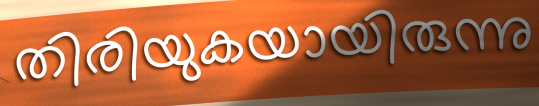
തിരിയുകയായിരുന്നു